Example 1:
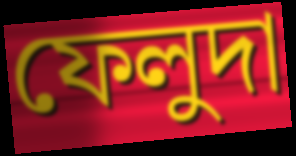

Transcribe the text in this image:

ফেলুদা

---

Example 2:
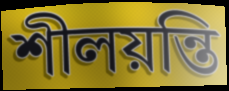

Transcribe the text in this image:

শীলয়ন্তি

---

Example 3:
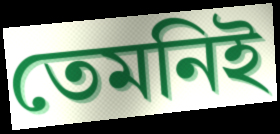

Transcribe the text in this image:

তেমনিই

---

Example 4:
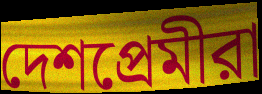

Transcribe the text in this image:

দেশপ্রেমীরা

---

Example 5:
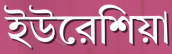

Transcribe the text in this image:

ইউরেশিয়া